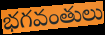
భగవంతులు